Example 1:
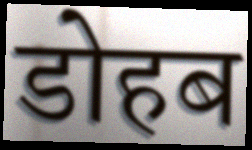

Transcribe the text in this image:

डोहब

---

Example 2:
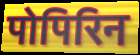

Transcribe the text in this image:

पोपिरिन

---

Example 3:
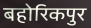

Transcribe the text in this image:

बहोरिकपुर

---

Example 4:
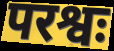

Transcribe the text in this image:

परश्वः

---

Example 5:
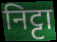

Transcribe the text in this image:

निट्टा